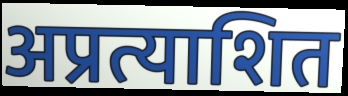
अप्रत्याशित